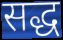
सद्ध